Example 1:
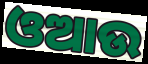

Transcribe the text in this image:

ଓଆଉ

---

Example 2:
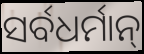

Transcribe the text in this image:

ସର୍ବଧର୍ମାନ୍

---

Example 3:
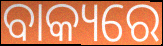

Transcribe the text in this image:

ବାକ୍ୟରେ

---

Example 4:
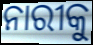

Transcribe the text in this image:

ନାରୀକୁ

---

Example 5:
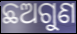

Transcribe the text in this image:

ଛଅଗୁଣ